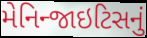
મેનિન્જાઇટિસનું